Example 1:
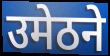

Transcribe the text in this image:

उमेठने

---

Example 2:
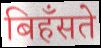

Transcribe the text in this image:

बिहँसते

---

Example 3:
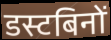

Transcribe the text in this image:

डस्टबिनों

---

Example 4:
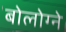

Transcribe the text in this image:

बोलोग्ने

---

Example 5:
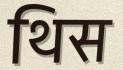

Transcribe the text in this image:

थिस